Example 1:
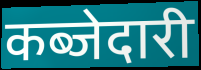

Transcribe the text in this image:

कब्जेदारी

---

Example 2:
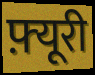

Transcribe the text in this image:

फ़्यूरी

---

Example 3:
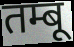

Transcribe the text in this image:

तम्‍बू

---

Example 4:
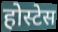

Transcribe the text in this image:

होस्टेस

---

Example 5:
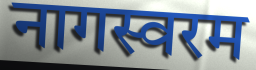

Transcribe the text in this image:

नागस्वरम